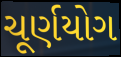
ચૂર્ણયોગ